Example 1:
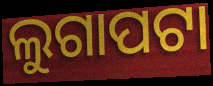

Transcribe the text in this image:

ଲୁଗାପଟା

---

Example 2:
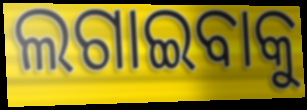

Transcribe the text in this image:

ଲଗାଇବାକୁ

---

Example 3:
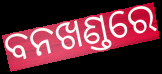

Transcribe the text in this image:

ବନଖଣ୍ଡରେ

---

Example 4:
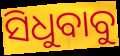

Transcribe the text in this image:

ସିଧୁବାବୁ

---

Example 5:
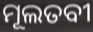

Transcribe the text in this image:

ମୂଲତବୀ